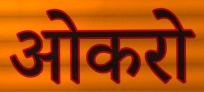
ओकरो